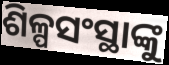
ଶିଳ୍ପସଂସ୍ଥାଙ୍କୁ